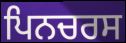
ਪਿਨਚਰਸ